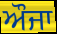
ਔਜਾ